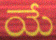
యే